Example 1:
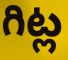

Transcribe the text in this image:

గిట్ల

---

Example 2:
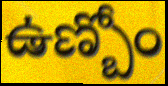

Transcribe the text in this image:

ఉణ్బోం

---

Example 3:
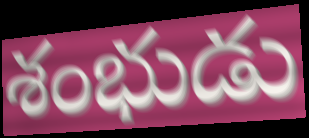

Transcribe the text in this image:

శంభుడు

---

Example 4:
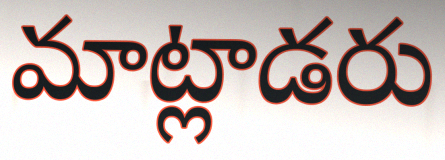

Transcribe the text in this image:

మాట్లాడరు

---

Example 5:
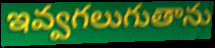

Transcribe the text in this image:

ఇవ్వగలుగుతాను